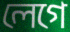
লেগে